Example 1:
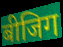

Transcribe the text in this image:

बीजिग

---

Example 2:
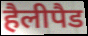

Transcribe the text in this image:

हैलीपैड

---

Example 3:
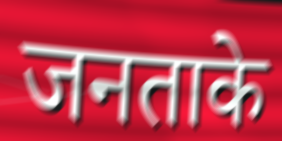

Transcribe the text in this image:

जनताके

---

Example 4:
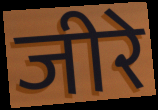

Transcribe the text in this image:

जीरे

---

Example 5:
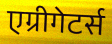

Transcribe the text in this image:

एग्रीगेटर्स